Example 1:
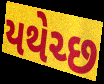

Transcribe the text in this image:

યથેચ્છ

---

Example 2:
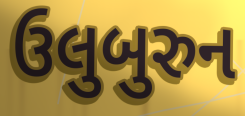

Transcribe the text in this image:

ઉલુબુરુન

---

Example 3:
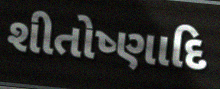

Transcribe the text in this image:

શીતોષ્ણાદિ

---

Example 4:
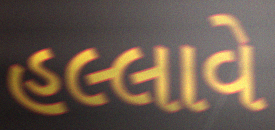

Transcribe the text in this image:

હલ્લાવે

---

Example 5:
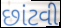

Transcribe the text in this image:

છાંટવી